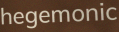
hegemonic